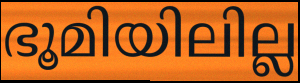
ഭൂമിയിലില്ല